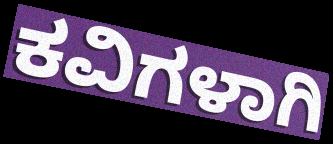
ಕವಿಗಳಾಗಿ